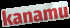
kanamu